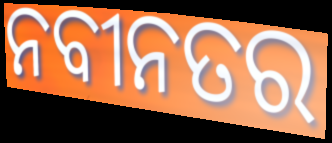
ନବୀନତର